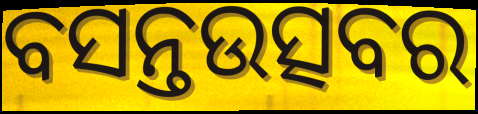
ବସନ୍ତଉତ୍ସବର